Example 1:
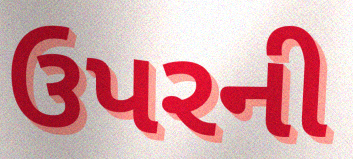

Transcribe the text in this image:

ઉપરની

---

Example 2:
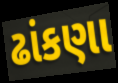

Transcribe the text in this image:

ઢાંકણા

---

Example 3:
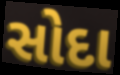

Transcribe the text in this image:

સોદા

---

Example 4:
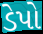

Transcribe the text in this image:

ડેપો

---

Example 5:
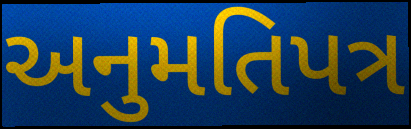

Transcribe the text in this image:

અનુમતિપત્ર